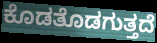
ಕೊಡತೊಡಗುತ್ತದೆ